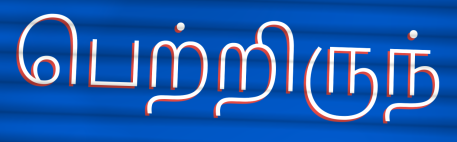
பெற்றிருந்